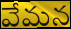
వేమన